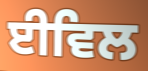
ਈਵਿਲ